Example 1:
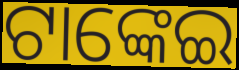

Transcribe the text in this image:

ଟାଙ୍କେଇ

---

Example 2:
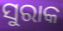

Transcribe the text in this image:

ସୁରାକ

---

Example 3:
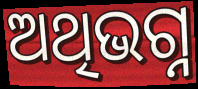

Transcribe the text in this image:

ଅଥିଭଗ୍ନ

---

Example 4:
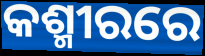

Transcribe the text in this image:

କଶ୍ମୀରରେ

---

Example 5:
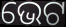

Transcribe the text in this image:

ଭେଟ